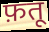
फ़तू